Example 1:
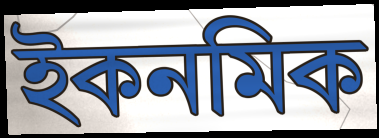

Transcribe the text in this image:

ইকনমিক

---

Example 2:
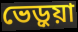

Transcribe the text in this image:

ভেড়ুয়া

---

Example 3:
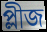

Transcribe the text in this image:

প্লীজ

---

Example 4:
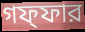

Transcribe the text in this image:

গফ্ফার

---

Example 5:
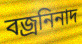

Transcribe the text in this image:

বজ্রনিনাদ